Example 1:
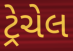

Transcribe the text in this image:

ટ્રેચેલ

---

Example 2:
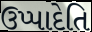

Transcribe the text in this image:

ઉપ્પાદેતિ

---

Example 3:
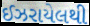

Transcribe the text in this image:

ઈઝરાયેલથી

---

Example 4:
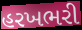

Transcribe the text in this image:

હરખભરી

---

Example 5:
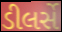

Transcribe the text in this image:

ડીલર્સે